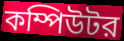
কম্পিউটর